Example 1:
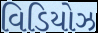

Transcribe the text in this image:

વિડિયોઝ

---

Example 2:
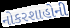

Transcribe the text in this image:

નોકરશાહોની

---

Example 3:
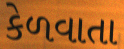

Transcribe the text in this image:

કેળવાતા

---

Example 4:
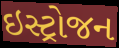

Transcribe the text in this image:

ઇસ્ટ્રોજન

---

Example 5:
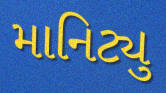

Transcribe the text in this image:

માનિટ્યુ